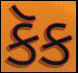
કૅક